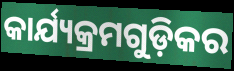
କାର୍ଯ୍ୟକ୍ରମଗୁଡ଼ିକର